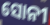
ସୋନୀ